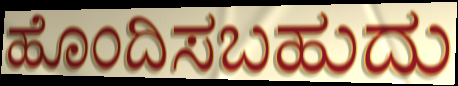
ಹೊಂದಿಸಬಹುದು